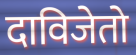
दाविजेतो